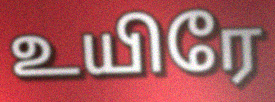
உயிரே